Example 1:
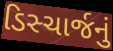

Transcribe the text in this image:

ડિસ્ચાર્જનું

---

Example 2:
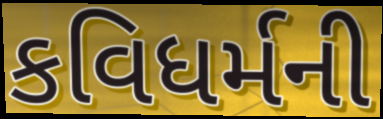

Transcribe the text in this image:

કવિધર્મની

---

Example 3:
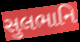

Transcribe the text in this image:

સુલભાનિ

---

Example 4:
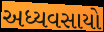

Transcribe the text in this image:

અધ્યવસાયો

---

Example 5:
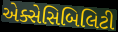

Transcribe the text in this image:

એક્સેસિબિલિટી